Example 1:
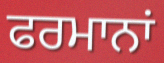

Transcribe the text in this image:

ਫਰਮਾਨਾਂ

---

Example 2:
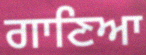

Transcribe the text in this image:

ਗਾਣਿਆ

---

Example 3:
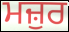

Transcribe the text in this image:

ਮਜ਼ੁਰ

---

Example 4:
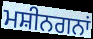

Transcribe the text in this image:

ਮਸ਼ੀਨਗਨਾਂ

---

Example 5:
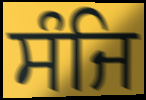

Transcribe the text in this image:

ਸੰਜਿ